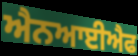
ਐਨਆਈਐਫ